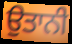
ਉਤਾਨੀ